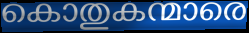
കൊതുകന്മാരെ